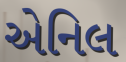
એનિલ